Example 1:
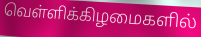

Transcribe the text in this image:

வெள்ளிக்கிழமைகளில்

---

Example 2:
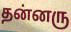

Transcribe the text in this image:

தன்னரு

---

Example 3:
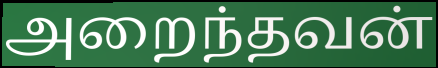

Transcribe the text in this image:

அறைந்தவன்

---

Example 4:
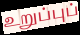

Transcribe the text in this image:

உறுப்புப்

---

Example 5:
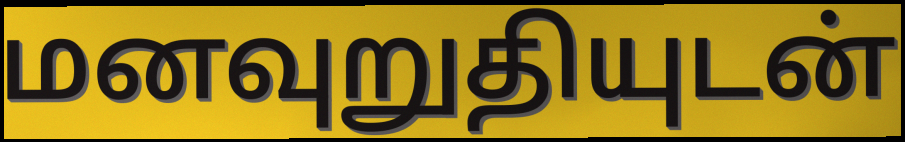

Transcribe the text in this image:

மனவுறுதியுடன்